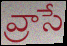
వ్రాసే